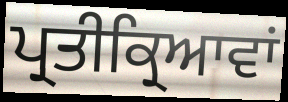
ਪ੍ਰਤੀਕ੍ਰਿਆਵਾਂ